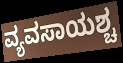
ವ್ಯವಸಾಯಶ್ಚ